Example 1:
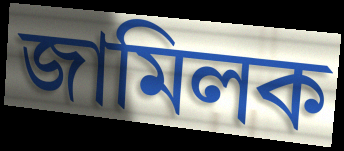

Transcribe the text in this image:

জামিলক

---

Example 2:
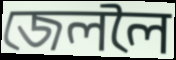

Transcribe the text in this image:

জেললৈ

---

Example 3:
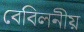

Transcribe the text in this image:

বেবিলনীয়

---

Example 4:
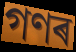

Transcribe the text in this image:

গণৰ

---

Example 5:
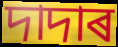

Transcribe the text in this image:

দাদাৰ